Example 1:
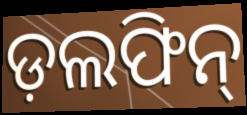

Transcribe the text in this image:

ଡ଼ଲଫିନ୍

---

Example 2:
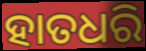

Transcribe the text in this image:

ହାତଧରି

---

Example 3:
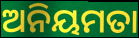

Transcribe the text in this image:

ଅନିୟମତା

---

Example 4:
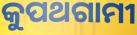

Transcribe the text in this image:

କୁପଥଗାମୀ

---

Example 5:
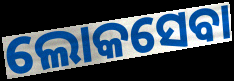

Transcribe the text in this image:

ଲୋକସେବା